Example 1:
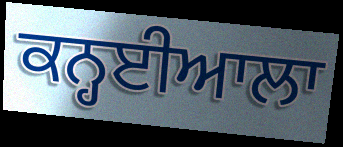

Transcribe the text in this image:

ਕਨ੍ਹਈਆਲਾ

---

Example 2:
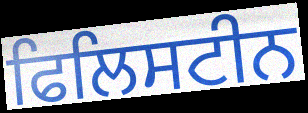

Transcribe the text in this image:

ਫਿਲਿਸਟੀਨ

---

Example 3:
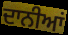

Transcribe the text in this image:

ਦਾਨੀਆਂ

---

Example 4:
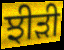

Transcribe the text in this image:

ਝੀੜੀ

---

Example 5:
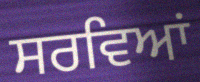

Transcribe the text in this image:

ਸਰਵਿਆਂ